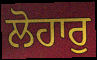
ਲੋਹਾਰੁ